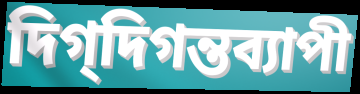
দিগ্‌দিগন্তব্যাপী